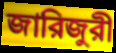
জারিজুরী